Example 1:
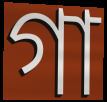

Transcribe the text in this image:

গা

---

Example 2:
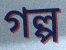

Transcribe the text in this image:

গল্প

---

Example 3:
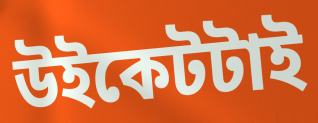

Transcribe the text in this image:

উইকেটটাই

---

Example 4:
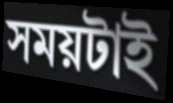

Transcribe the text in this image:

সময়টাই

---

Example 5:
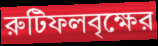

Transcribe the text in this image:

রুটিফলবৃক্ষের